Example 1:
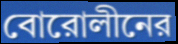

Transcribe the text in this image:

বোরোলীনের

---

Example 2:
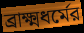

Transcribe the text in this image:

ব্রাক্ষ্মধর্মের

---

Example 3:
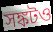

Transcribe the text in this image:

সঙ্কটও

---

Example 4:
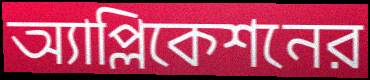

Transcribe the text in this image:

অ্যাপ্লিকেশনের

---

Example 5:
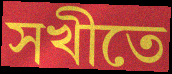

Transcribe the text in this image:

সখীতে